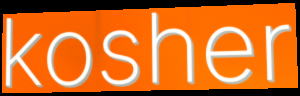
kosher